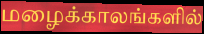
மழைக்காலங்களில்